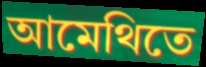
আমেথিতে